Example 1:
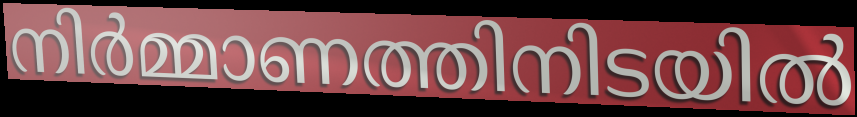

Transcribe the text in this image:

നിർമ്മാണത്തിനിടയിൽ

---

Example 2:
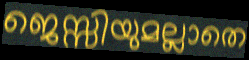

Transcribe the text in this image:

ജെസ്സിയുമല്ലാതെ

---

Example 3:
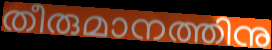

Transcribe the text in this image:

തീരുമാനത്തിനു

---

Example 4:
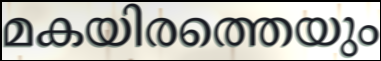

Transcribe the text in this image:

മകയിരത്തെയും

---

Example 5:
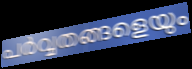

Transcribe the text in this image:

പർവ്വതങ്ങളെയും